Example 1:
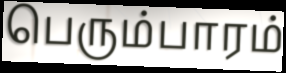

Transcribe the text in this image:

பெரும்பாரம்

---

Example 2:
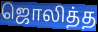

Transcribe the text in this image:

ஜொலித்த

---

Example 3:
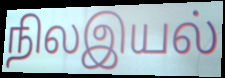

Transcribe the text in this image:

நிலஇயல்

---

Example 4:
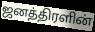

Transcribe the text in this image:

ஜனத்திரளின்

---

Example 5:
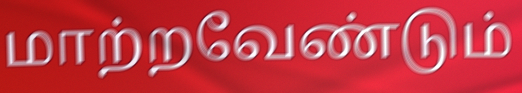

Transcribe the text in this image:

மாற்றவேண்டும்